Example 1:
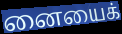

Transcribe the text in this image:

னையைக்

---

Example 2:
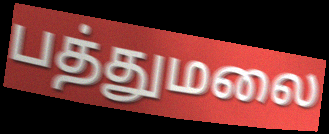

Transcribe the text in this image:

பத்துமலை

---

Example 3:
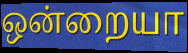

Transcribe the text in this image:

ஒன்றையா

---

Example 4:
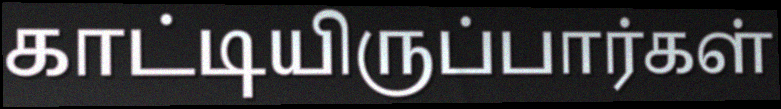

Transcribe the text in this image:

காட்டியிருப்பார்கள்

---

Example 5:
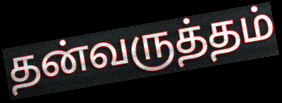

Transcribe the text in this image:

தன்வருத்தம்